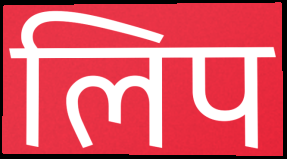
लिप